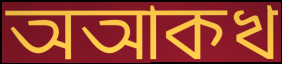
অআকখ